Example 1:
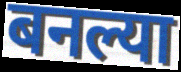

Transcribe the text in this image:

बनल्या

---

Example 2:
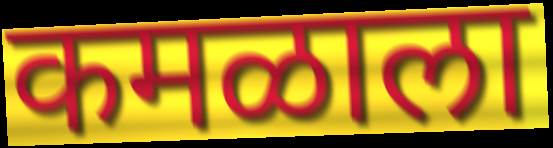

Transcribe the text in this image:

कमळाला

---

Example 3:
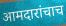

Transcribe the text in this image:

आमदारांचाच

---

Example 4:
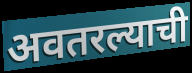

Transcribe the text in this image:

अवतरल्याची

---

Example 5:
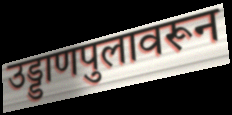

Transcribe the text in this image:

उड्डाणपुलावरून